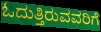
ಓದುತ್ತಿರುವವರಿಗೆ